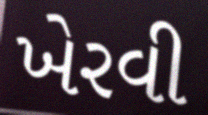
ખેરવી